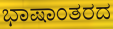
ಭಾಷಾಂತರದ